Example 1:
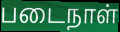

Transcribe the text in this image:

படைநாள்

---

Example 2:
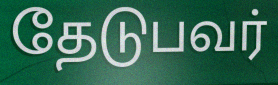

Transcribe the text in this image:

தேடுபவர்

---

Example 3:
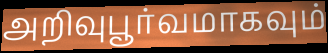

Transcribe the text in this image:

அறிவுபூர்வமாகவும்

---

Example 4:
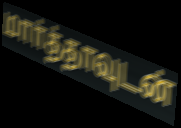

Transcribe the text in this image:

மார்த்தாவுடன்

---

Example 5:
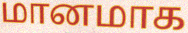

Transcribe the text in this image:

மானமாக